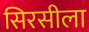
सिरसीला